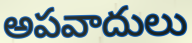
అపవాదులు